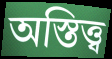
অস্তিত্ত্ব